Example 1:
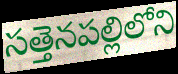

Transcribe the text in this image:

సత్తెనపల్లిలోని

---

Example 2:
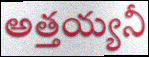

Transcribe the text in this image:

అత్తయ్యనీ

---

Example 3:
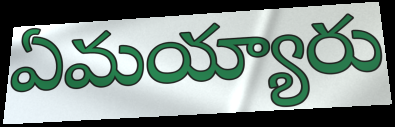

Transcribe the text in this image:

ఏమయ్యారు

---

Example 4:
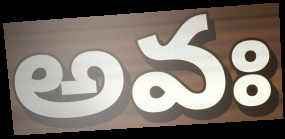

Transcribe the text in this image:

అవః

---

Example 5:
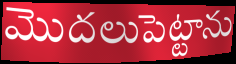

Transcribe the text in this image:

మొదలుపెట్టాను